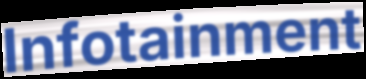
Infotainment